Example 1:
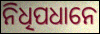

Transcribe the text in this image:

ନିଧିପଧାନେ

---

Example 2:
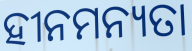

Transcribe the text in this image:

ହୀନମନ୍ୟତା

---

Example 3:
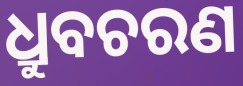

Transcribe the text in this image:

ଧ୍ରୁବଚରଣ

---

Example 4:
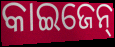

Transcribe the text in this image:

କାଇଜେନ୍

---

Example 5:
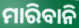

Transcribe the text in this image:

ମାରିବାନି